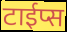
टाईप्स